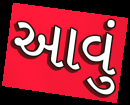
આવું